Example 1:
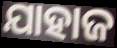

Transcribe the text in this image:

ଯାହାଜ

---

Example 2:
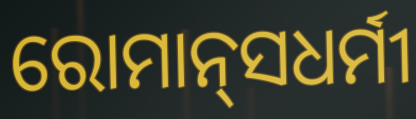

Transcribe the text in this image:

ରୋମାନ୍‍ସଧର୍ମୀ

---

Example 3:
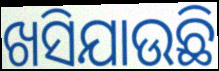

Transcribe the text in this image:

ଖସିଯାଉଛି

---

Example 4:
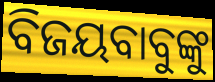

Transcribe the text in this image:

ବିଜୟବାବୁଙ୍କୁ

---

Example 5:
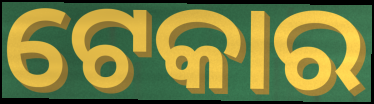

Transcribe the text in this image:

ଟେକାର